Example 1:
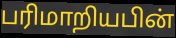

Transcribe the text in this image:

பரிமாறியபின்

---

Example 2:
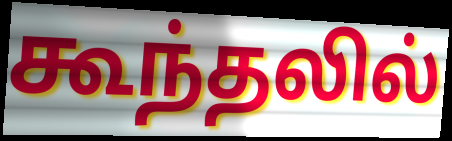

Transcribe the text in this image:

கூந்தலில்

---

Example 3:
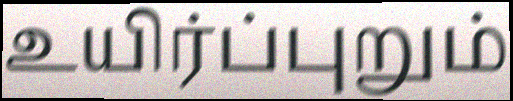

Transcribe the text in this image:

உயிர்ப்புறும்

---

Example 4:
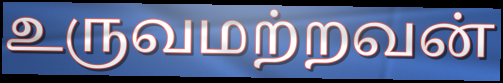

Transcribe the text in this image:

உருவமற்றவன்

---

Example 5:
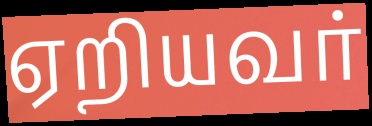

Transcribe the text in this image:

ஏறியவர்